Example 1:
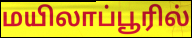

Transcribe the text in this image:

மயிலாப்பூரில்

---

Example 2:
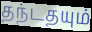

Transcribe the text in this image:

தந்டதயும்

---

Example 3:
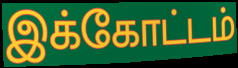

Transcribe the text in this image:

இக்கோட்டம்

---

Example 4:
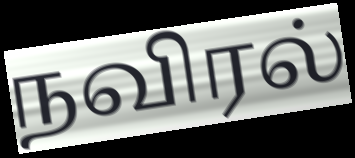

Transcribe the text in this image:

நவிரல்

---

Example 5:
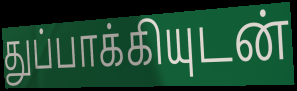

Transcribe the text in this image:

துப்பாக்கியுடன்